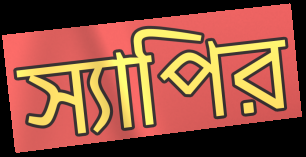
স্যাপির